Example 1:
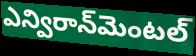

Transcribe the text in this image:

ఎన్విరాన్‌మెంటల్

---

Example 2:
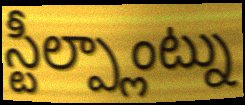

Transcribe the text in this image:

స్టీల్ప్లాంట్ను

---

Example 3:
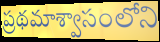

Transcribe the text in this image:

ప్రథమాశ్వాసంలోని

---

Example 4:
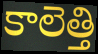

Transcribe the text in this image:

కాలెత్తి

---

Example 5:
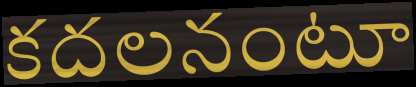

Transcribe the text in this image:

కదలనంటూ